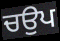
ਚਉਪ